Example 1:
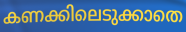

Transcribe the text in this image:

കണക്കിലെടുക്കാതെ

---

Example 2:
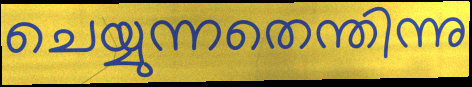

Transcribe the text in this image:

ചെയ്യുന്നതെന്തിന്നു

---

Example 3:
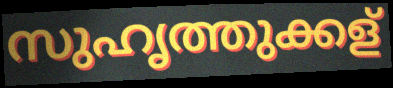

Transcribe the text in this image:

സുഹൃത്തുക്കള്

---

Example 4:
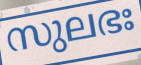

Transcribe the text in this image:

സുലഭഃ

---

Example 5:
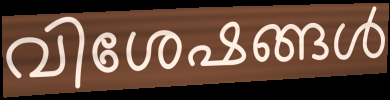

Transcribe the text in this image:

വിശേഷങ്ങൾ